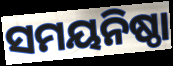
ସମୟନିଷ୍ଠା